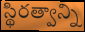
స్థిరత్వాన్ని